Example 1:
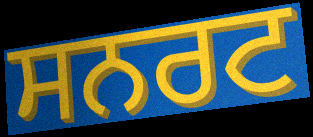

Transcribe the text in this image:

ਸਨਰਟ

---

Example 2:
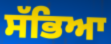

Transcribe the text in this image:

ਸੱਭਿਆ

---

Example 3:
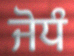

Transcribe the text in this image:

ਜੋਧੰ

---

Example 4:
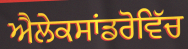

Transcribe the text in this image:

ਐਲੇਕਸਾਂਡਰੋਵਿੱਚ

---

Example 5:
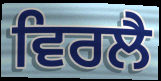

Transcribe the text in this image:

ਵਿਰਲੈ